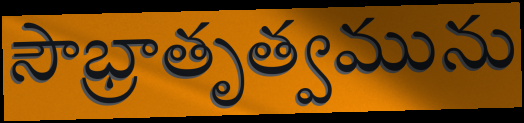
సౌభ్రాతృత్వమును